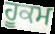
ਹੂਕਮ